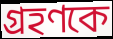
গ্ৰহণকে